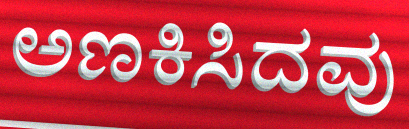
ಅಣಕಿಸಿದವು